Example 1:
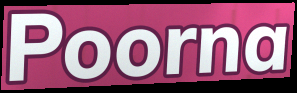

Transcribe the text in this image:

Poorna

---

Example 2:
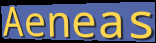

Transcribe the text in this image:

Aeneas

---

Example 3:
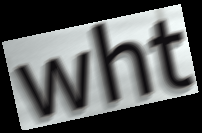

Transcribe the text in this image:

wht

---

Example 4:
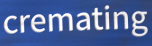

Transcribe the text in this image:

cremating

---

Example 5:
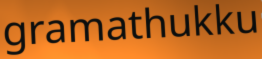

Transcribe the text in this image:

gramathukku